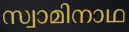
സ്വാമിനാഥ